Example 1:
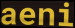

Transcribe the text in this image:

aeni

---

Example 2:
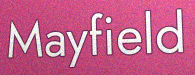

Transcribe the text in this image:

Mayfield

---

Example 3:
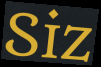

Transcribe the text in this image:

Siz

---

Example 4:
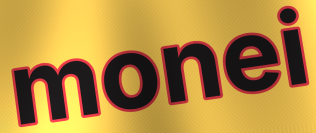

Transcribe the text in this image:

monei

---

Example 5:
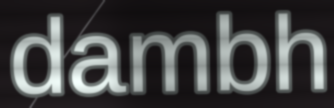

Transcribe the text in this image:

dambh